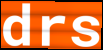
drs